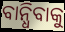
ବାନ୍ଧିବାକୁ